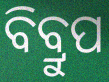
ବିବ୍ରୁପ